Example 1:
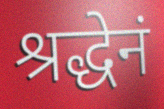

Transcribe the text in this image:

श्रद्धेनं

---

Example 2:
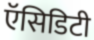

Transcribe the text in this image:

ऍसिडिटी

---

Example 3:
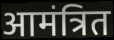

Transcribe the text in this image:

आमंत्रित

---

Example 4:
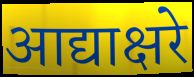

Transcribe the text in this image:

आद्याक्षरे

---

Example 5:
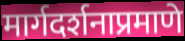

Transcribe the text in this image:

मार्गदर्शनाप्रमाणे